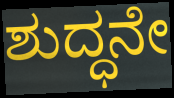
ಶುದ್ಧನೇ